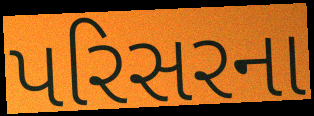
પરિસરના